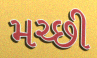
મચ્છી